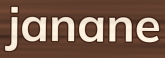
janane